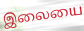
இலையை